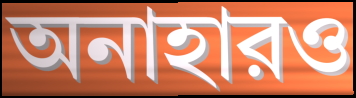
অনাহারও